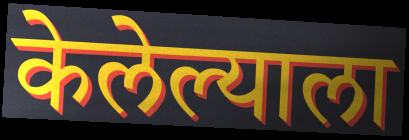
केलेल्याला